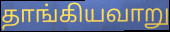
தாங்கியவாறு